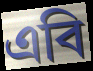
এবি